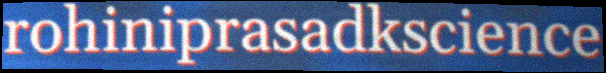
rohiniprasadkscience